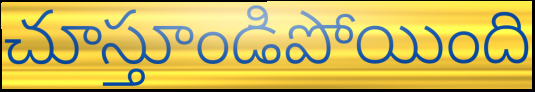
చూస్తూండిపోయింది